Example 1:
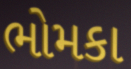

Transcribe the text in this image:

ભોમકા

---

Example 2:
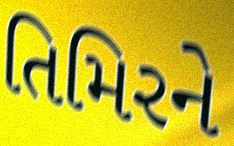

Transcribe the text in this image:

તિમિરને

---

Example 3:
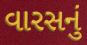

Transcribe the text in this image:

વારસનું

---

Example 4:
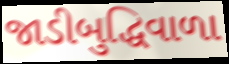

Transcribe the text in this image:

જાડીબુદ્ધિવાળા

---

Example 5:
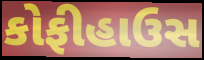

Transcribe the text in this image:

કોફીહાઉસ